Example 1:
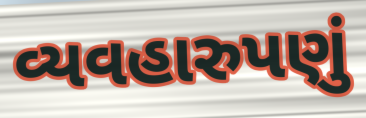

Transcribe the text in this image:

વ્યવહારુપણું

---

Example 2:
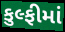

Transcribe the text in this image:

કુલ્ફીમાં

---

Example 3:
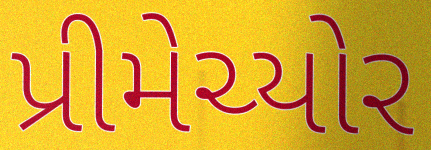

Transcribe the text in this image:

પ્રીમેચ્યોર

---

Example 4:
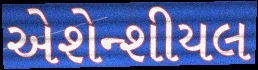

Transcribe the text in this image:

એશેન્શીયલ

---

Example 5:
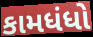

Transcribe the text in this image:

કામધંધો